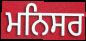
ਮਨਿਸਰ